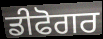
ਡੀਫੋਗਰ